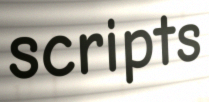
scripts